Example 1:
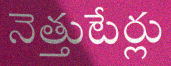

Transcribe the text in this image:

నెత్తుటేర్లు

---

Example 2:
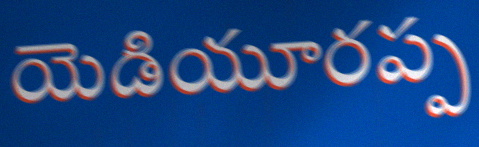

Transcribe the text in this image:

యెడియూరప్ప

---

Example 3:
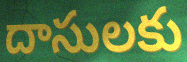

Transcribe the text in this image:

దాసులకు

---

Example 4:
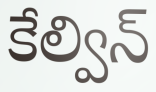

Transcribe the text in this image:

కేల్విన్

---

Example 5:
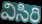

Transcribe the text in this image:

విసిరి